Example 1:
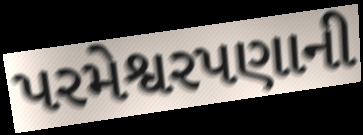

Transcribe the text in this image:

પરમેશ્વરપણાની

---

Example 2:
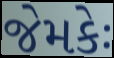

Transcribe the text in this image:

જેમકેઃ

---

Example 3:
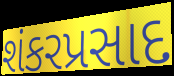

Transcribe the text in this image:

શંકરપ્રસાદ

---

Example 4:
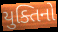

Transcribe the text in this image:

યુક્તિનો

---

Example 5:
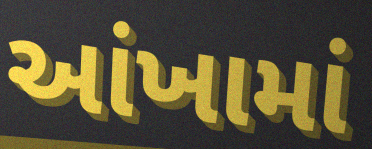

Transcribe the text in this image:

આંખામાં